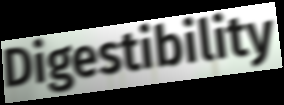
Digestibility